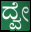
ದ್ವೇ